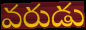
వరుడు